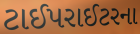
ટાઈપરાઈટરના